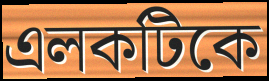
এলকটিকে